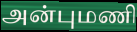
அன்புமணி